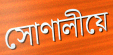
সোণালীয়ে